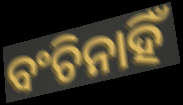
ବଂଚିନାହିଁ